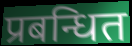
प्रबन्धित